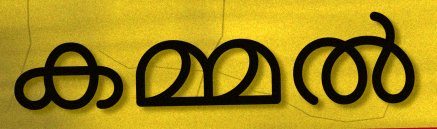
കമ്മൽ